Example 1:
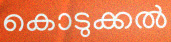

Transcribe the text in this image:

കൊടുക്കൽ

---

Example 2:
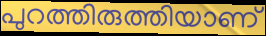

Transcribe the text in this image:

പുറത്തിരുത്തിയാണ്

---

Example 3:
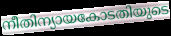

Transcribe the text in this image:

നീതിന്യായകോടതിയുടെ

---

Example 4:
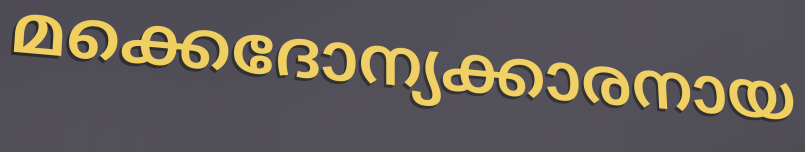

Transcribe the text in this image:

മക്കെദോന്യക്കാരനായ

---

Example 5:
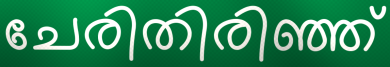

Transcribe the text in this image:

ചേരിതിരിഞ്ഞ്